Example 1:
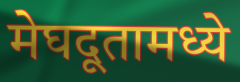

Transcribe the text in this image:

मेघदूतामध्ये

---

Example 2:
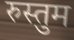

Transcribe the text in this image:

रुस्तुम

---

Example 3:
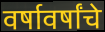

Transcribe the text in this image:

वर्षावर्षांचे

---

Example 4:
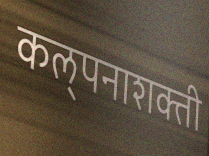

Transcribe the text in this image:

कल्पनाशक्ती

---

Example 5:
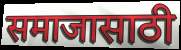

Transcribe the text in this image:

समाजासाठी